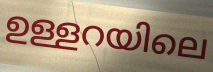
ഉള്ളറയിലെ